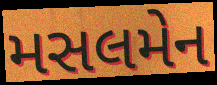
મસલમેન